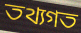
তথ্যগত